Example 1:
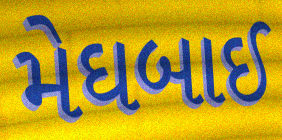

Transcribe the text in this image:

મેઘબાઈ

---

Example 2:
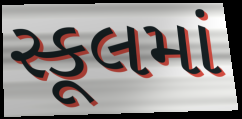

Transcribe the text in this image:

સ્કૂલમાં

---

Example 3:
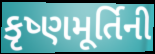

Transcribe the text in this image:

કૃષ્ણમૂર્તિની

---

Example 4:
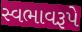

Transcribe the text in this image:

સ્વભાવરૂપે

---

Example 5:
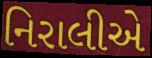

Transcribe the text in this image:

નિરાલીએ